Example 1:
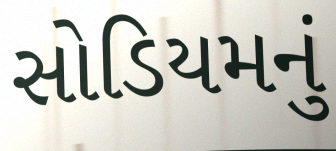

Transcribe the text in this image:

સોડિયમનું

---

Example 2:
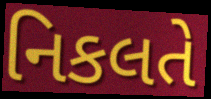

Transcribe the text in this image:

નિકલતે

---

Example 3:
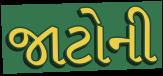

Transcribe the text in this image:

જાટોની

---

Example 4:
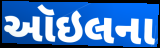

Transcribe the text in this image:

ઑઇલના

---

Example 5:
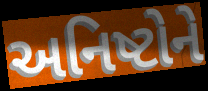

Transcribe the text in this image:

અનિષ્ટોને